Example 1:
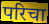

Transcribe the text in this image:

परिचा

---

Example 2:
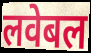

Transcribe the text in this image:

लवेबल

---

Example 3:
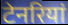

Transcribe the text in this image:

टेनरियां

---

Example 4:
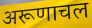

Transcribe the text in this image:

अरूणाचल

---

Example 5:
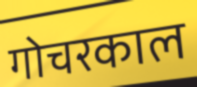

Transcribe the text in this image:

गोचरकाल